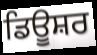
ਡਿਊਸ਼ਰ